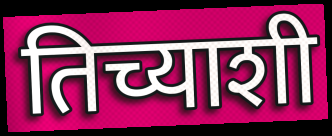
तिच्याशी